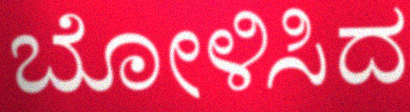
ಬೋಳಿಸಿದ